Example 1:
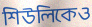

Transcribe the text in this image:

শিউলিকেও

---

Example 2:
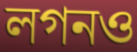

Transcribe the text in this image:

লগনও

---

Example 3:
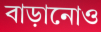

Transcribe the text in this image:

বাড়ানোও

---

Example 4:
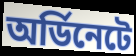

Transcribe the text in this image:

অর্ডিনেটে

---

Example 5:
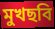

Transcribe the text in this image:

মুখছবি